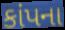
કાંપના